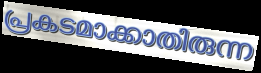
പ്രകടമാക്കാതിരുന്ന